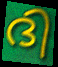
ദി